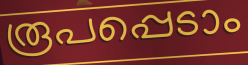
രൂപപ്പെടാം